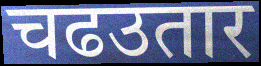
चढउतार